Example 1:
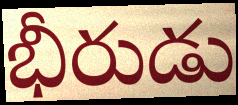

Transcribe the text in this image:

భీరుడు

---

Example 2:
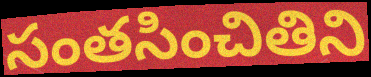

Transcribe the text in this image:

సంతసించితిని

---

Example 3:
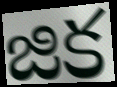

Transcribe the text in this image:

జిక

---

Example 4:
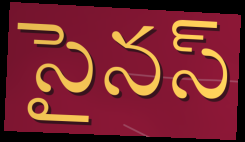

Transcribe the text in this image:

సైనస్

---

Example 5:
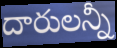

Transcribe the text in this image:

దారులన్నీ